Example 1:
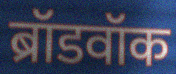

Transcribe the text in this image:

ब्रॉडवॉक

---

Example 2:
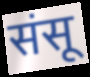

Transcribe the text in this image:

संसू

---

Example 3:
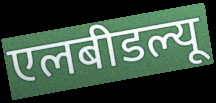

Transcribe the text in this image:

एलबीडल्यू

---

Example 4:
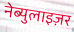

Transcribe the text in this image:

नेब्युलाइज़र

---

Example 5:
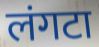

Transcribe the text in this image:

लंगटा